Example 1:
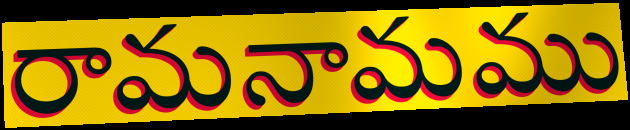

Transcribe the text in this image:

రామనామము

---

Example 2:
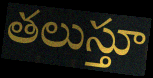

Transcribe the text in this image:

తలుస్తూ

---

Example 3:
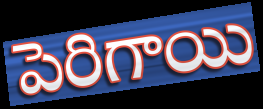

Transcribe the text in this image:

పెరిగాయి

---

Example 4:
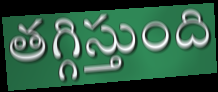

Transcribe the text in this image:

తగ్గిస్తుంది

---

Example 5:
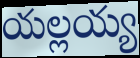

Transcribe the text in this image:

యల్లయ్య